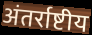
अंतर्राष्टीय